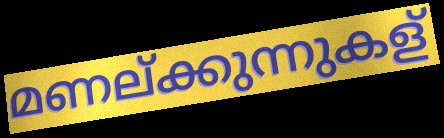
മണല്ക്കുന്നുകള്